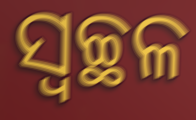
ସ୍ବଚ୍ଛଳ